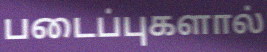
படைப்புகளால்